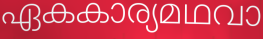
ഏകകാര്യമഥവാ